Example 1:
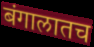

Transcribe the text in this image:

बंगालातच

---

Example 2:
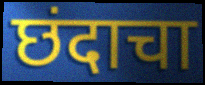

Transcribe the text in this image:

छंदाचा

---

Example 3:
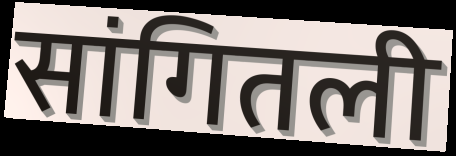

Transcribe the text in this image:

सांगितली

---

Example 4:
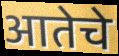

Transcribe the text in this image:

आतेचे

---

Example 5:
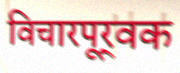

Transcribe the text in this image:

विचारपूर्वक